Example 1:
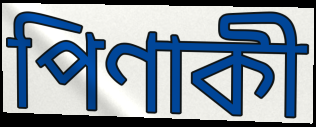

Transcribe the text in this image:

পিণাকী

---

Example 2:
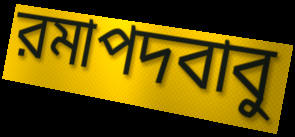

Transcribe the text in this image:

রমাপদবাবু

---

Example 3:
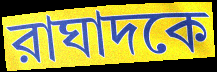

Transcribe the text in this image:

রাঘাদকে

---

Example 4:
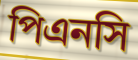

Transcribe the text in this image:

পিএনসি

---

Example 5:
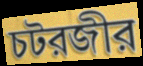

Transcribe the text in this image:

চটরজীর